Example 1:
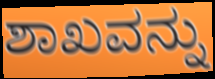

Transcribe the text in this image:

ಶಾಖವನ್ನು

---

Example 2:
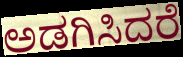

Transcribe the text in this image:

ಅಡಗಿಸಿದರೆ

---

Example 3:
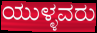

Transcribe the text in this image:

ಯುಳ್ಳವರು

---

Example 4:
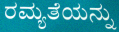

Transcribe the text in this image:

ರಮ್ಯತೆಯನ್ನು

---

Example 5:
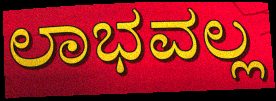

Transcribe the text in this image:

ಲಾಭವಲ್ಲ